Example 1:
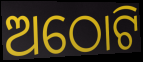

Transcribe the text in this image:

ଅଠୋଟି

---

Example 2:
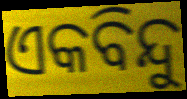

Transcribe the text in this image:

ଏକବିନ୍ଦୁ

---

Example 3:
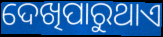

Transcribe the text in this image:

ଦେଖିପାରୁଥାଏ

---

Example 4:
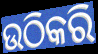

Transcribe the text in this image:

ଉଠିକରି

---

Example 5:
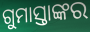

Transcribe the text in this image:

ଗୁମାସ୍ତାଙ୍କର